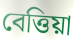
বেত্তিয়া